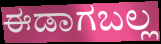
ಈಡಾಗಬಲ್ಲ